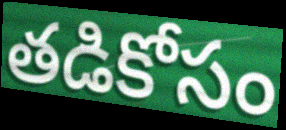
తడికోసం